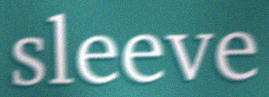
sleeve